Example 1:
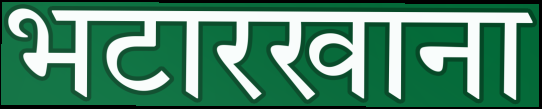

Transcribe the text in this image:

भटारखाना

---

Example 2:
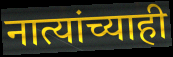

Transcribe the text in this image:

नात्यांच्याही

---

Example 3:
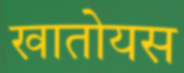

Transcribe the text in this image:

खातोयस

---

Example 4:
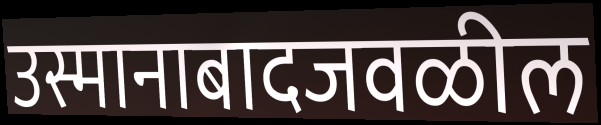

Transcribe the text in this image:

उस्मानाबादजवळील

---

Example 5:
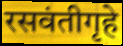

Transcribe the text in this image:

रसवंतीगृहे